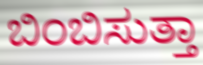
ಬಿಂಬಿಸುತ್ತಾ